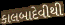
કાલબાદેવીથી